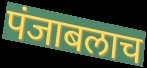
पंजाबलाच